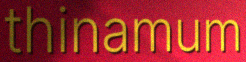
thinamum